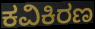
ಕವಿಕಿರಣ